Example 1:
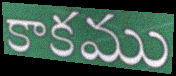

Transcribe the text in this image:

కాకము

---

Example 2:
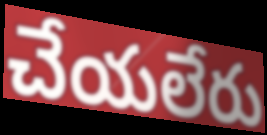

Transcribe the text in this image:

చేయలేరు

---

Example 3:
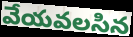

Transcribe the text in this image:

వేయవలసిన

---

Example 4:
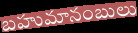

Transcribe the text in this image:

బహుమానంబులు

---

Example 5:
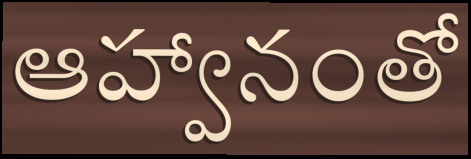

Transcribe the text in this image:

ఆహ్వానంతో